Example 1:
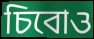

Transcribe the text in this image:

চিবোও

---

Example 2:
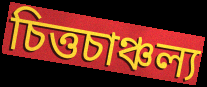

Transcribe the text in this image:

চিত্তচাঞ্চল্য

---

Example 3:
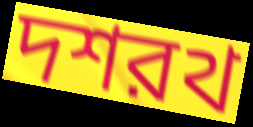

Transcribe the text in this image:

দশরথ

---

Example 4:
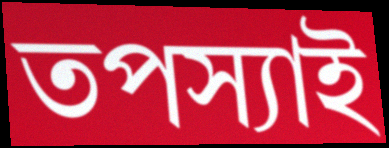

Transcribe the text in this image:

তপস্যাই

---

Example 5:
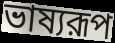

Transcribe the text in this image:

ভাষ্যরূপ